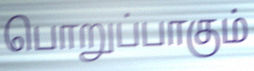
பொறுப்பாகும்